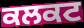
ਕਲਕਟ